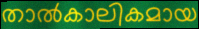
താൽകാലികമായ